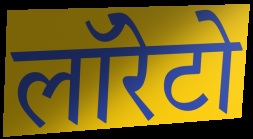
लॉरेटो